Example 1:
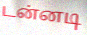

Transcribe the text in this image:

டன்னடி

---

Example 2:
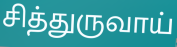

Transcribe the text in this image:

சித்துருவாய்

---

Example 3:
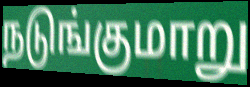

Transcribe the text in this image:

நடுங்குமாறு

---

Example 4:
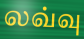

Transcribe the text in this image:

லவ்வு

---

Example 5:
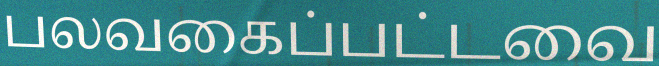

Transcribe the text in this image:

பலவகைப்பட்டவை